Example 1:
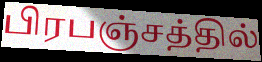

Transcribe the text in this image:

பிரபஞ்சத்தில்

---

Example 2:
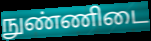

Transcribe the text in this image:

நுண்ணிடை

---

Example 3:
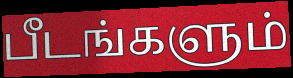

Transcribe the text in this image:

பீடங்களும்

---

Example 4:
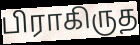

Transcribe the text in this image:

பிராகிருத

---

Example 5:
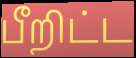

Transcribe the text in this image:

பீறிட்ட